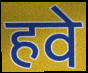
हवे